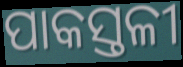
ପାକସ୍ତଳୀ